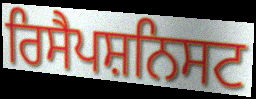
ਰਿਸੈਪਸ਼ਨਿਸਟ